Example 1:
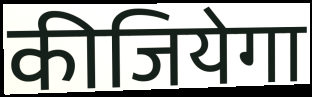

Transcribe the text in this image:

कीजियेगा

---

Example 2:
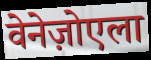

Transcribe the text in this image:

वेनेज़ोएला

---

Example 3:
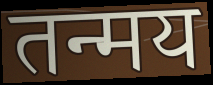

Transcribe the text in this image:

तन्मय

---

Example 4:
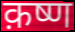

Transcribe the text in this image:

क़ष्ण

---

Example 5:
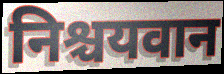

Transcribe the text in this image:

निश्चयवान